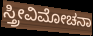
ಸ್ತ್ರೀವಿಮೋಚನಾ